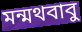
মন্মথবাবু